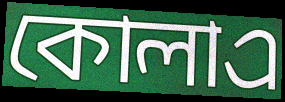
কোলাএ